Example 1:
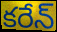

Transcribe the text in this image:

కరేన్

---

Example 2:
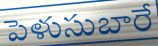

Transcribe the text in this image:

పెళుసుబారే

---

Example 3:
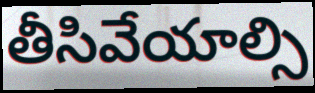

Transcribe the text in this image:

తీసివేయాల్సి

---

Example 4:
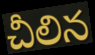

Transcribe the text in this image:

చీలిన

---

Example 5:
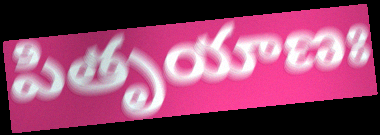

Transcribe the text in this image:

పితృయాణః